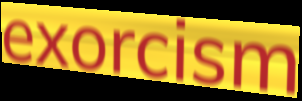
exorcism